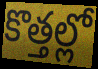
కొత్తల్లో